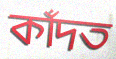
কাঁদত